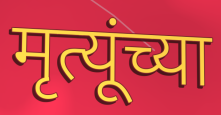
मृत्यूंच्या